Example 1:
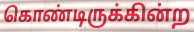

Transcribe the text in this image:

கொண்டிருக்கின்ற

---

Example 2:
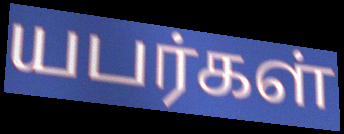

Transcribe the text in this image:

யபர்கள்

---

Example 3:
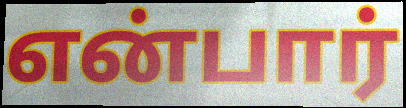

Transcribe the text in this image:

என்பார்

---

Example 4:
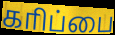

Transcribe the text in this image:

கரிப்பை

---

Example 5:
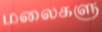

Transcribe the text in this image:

மலைகளு